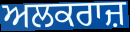
ਅਲਕਰਾਜ਼